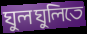
ঘুলঘুলিতে